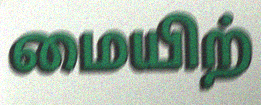
மையிற்